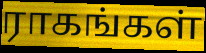
ராகங்கள்